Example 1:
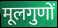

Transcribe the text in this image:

मूलगुणों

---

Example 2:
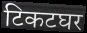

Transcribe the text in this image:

टिकटघर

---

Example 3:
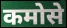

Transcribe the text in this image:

कमोसे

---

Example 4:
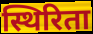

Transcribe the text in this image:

स्थिरिता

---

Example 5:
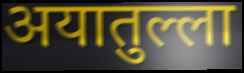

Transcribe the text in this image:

अयातुल्‍ला